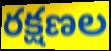
రక్షణల